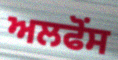
ਅਲਫੋਂਸ